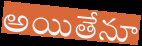
అయితేనూ